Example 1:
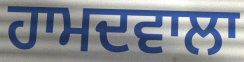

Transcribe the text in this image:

ਹਾਮਦਵਾਲਾ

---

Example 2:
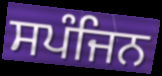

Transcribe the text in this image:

ਸਪੰਜਿਨ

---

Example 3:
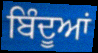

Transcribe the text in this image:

ਬਿੰਦੂਆਂ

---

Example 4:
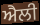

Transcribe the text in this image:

ਐਲੀ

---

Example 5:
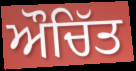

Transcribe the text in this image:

ਔਚਿੱਤ